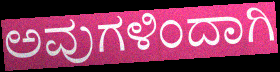
ಅವುಗಳಿಂದಾಗಿ